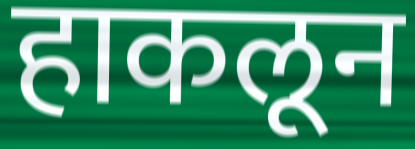
हाकलून